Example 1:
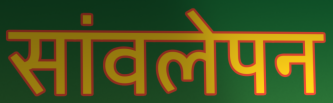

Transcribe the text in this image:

सांवलेपन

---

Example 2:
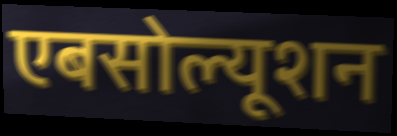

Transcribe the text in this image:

एबसोल्यूशन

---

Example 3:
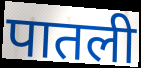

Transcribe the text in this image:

पातली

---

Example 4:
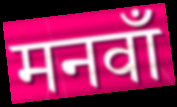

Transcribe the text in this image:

मनवाँ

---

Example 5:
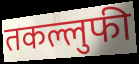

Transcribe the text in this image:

तकल्लुफी